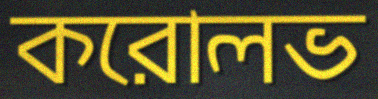
করোলভ